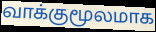
வாக்குமூலமாக